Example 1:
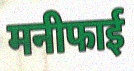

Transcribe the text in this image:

मनीफाई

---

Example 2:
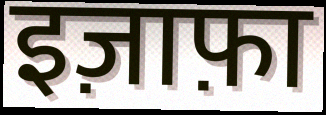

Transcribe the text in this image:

इज़ाफ़ा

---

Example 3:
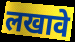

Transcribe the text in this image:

लखावे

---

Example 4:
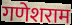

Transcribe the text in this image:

गणेशराम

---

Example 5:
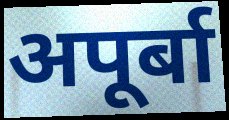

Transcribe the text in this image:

अपूर्बा